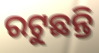
ରଟୁଛନ୍ତି